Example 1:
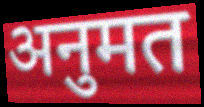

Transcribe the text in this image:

अनुमत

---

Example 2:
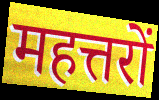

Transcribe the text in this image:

महत्तरों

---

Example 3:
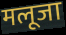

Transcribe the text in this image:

मलूजा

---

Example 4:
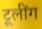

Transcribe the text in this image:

टूलींग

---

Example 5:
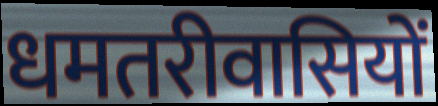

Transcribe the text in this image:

धमतरीवासियों